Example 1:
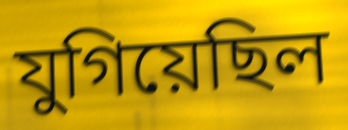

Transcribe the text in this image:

যুগিয়েছিল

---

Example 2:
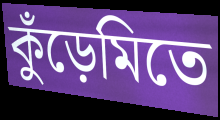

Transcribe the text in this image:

কুঁড়েমিতে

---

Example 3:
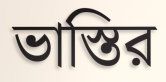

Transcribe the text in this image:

ভাস্তির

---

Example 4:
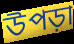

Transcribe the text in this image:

উপড়া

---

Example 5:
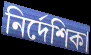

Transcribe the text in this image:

নির্দেশিকা